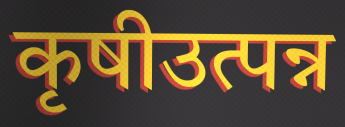
कृषीउत्पन्न